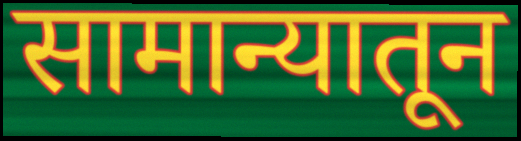
सामान्यातून